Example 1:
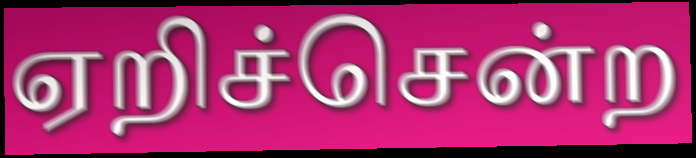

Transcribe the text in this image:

ஏறிச்சென்ற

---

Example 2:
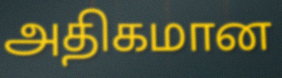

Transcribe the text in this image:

அதிகமான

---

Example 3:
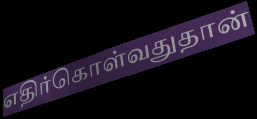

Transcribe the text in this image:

எதிர்கொள்வதுதான்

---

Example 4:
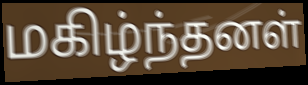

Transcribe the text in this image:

மகிழ்ந்தனள்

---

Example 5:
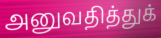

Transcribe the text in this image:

அனுவதித்துக்